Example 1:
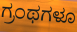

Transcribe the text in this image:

ಗ್ರಂಥಗಳೂ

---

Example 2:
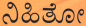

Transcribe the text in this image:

ನಿಹಿತೋ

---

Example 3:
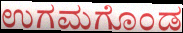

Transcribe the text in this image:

ಉಗಮಗೊಂಡ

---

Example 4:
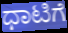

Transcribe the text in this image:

ಧಾಟಿಗೆ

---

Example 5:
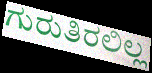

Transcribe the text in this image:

ಗುರುತಿರಲಿಲ್ಲ